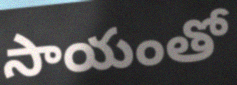
సాయంతో